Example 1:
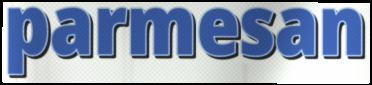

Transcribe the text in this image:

parmesan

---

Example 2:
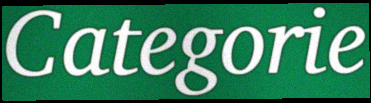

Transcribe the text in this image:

Categorie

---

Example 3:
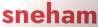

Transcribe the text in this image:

sneham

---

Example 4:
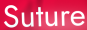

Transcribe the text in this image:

Suture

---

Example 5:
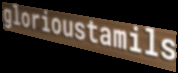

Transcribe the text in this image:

glorioustamils